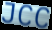
JCC